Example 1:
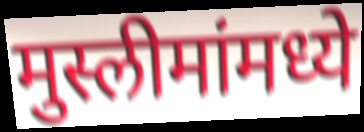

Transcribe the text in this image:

मुस्लीमांमध्ये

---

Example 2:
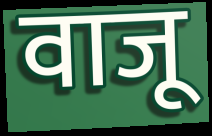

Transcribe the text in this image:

वाजू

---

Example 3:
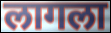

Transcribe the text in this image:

लागला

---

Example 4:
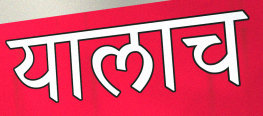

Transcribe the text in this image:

यालाच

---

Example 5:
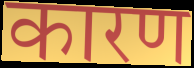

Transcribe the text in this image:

कारण